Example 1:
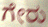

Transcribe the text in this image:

ಗೇರು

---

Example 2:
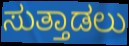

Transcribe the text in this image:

ಸುತ್ತಾಡಲು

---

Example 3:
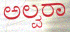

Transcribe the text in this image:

ಅಲ್ವರಾ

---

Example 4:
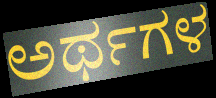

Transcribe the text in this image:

ಅರ್ಥಗಳ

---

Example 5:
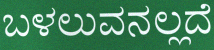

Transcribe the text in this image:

ಬಳಲುವನಲ್ಲದೆ